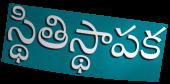
స్థితిస్థాపక